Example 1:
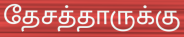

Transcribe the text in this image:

தேசத்தாருக்கு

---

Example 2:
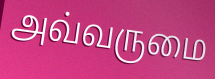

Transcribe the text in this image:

அவ்வருமை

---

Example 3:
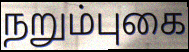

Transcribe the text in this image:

நறும்புகை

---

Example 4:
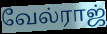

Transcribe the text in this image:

வேல்ராஜ்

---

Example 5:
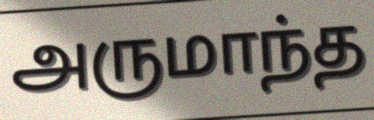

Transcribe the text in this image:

அருமாந்த